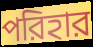
পরিহার